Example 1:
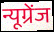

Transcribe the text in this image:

न्यूग्रेंज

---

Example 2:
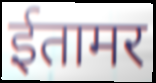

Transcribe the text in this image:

ईतामर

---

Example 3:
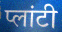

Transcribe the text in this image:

प्लांटी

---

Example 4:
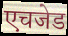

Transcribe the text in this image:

एचजेड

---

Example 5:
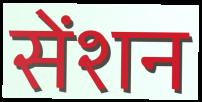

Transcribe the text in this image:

सेंशन